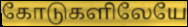
கோடுகளிலேயே